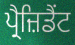
ਪ੍ਰੈਜ਼ਿਡੈਂਟ